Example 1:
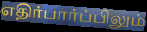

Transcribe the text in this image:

எதிர்பார்ப்பிலும்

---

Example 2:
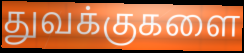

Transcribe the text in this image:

துவக்குகளை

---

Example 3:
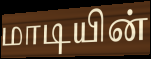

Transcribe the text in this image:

மாடியின்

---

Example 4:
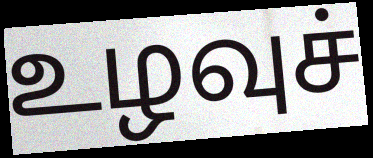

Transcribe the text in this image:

உழவுச்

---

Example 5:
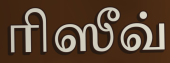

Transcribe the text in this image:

ரிஸீவ்